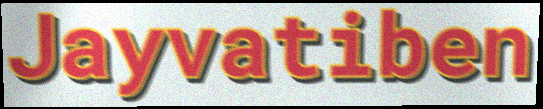
Jayvatiben